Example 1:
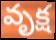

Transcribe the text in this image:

వృక్ష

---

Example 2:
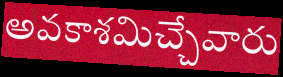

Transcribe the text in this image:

అవకాశమిచ్చేవారు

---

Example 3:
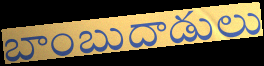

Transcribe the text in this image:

బాంబుదాడులు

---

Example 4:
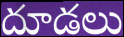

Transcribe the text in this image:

దూడలు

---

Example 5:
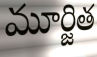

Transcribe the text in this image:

మూర్జిత